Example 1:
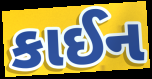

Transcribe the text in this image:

કાઈન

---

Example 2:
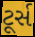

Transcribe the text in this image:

ટૂર્સ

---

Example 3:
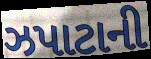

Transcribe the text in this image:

ઝપાટાની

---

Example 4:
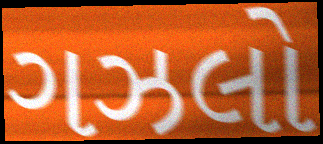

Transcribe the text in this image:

ગઝલો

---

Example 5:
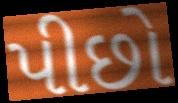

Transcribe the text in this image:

પીછો